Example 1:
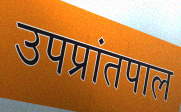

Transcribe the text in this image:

उपप्रांतपाल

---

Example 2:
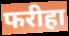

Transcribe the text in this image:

फरीहा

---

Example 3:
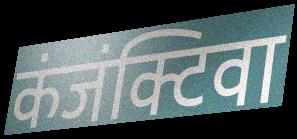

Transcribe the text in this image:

कंजंक्टिवा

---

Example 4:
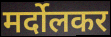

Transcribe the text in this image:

मर्दोलकर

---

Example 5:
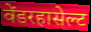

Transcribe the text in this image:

वेंडरहासेल्ट